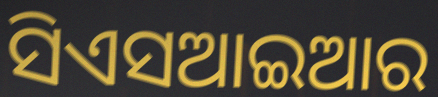
ସିଏସଆଇଆର